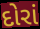
દોરાં